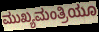
ಮುಖ್ಯಮಂತ್ರಿಯೂ